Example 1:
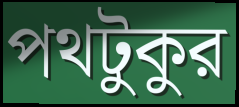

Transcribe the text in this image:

পথটুকুর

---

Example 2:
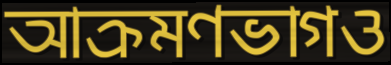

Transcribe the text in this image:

আক্রমণভাগও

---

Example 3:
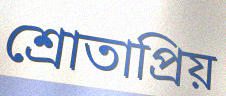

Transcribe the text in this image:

শ্রোতাপ্রিয়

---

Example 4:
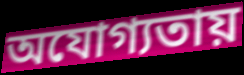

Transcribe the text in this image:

অযোগ্যতায়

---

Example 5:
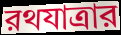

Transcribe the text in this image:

রথযাত্রার